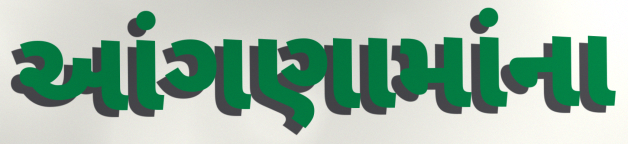
આંગણામાંના